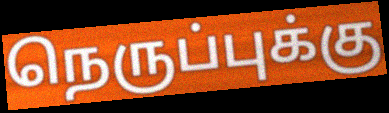
நெருப்புக்கு